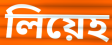
লিয়েহ